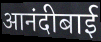
आनंदीबाई